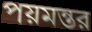
পয়মন্তর